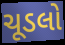
ચૂડલો